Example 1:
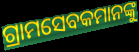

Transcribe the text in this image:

ଗ୍ରାମସେବକମାନଙ୍କୁ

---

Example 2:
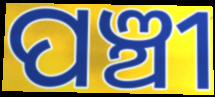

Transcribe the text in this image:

ପଞ୍ଚୀ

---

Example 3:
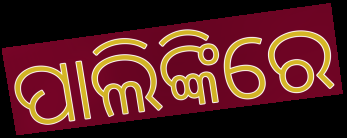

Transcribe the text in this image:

ପାଲିଙ୍କିରେ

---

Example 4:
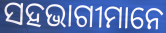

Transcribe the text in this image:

ସହଭାଗୀମାନେ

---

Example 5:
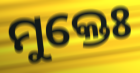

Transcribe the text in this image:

ମୁକ୍ତେଃ